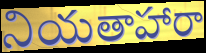
నియతాహారా